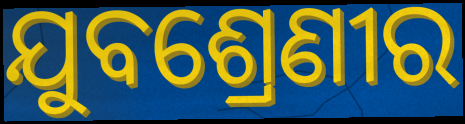
ଯୁବଶ୍ରେଣୀର